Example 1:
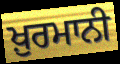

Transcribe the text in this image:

ਖ਼ੁਰਮਾਨੀ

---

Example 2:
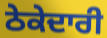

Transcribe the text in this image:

ਠੇਕੇਦਾਰੀ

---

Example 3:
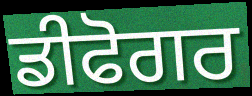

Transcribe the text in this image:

ਡੀਫੋਗਰ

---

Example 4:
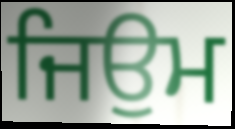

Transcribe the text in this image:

ਜਿਉਮ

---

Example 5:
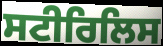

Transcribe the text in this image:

ਸਟੀਰਿਲਿਸ